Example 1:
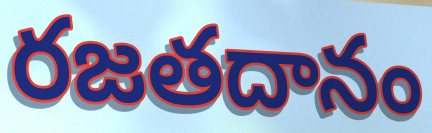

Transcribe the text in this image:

రజతదానం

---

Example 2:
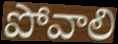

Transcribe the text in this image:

పోవాలి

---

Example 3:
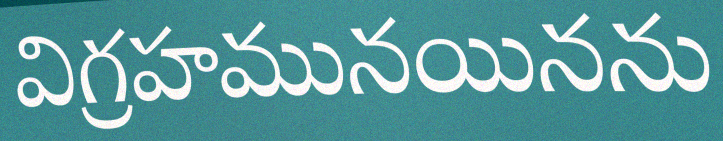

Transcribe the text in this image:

విగ్రహమునయినను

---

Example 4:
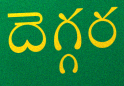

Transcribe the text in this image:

దెగ్గర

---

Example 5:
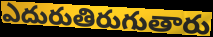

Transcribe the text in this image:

ఎదురుతిరుగుతారు